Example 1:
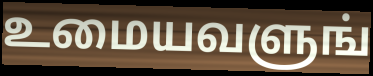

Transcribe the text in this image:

உமையவளுங்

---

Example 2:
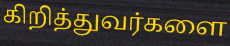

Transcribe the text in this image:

கிறித்துவர்களை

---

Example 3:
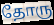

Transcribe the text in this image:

தோரு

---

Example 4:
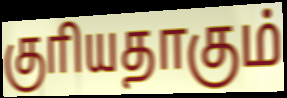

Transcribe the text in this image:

குரியதாகும்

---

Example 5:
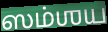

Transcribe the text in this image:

ஸம்ஶய